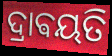
ଦ୍ରାଵୟତି